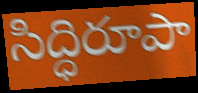
సిద్ధిరూపా